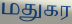
மதுகர